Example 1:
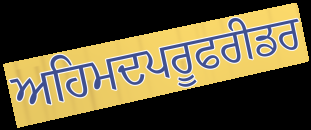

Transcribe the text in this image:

ਅਹਿਮਦਪਰੂਫਰੀਡਰ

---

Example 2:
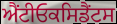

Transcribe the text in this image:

ਐਂਟੀਓਕਸਿਡੈਂਟਸ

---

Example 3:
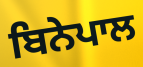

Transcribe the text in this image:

ਬਿਨੇਪਾਲ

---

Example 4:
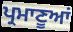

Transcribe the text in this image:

ਪ੍ਰਮਾਣੂਆਂ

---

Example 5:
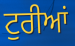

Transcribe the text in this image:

ਟੁਰੀਆਂ